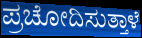
ಪ್ರಚೋದಿಸುತ್ತಾಳೆ